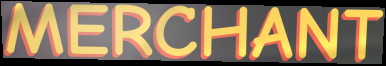
MERCHANT